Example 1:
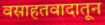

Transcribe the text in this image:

वसाहतवादातून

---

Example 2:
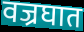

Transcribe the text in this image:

वज्रघात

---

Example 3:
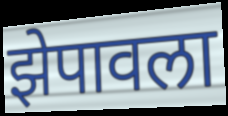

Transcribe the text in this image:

झेपावला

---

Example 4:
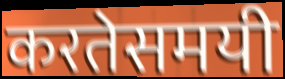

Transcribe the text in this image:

करतेसमयी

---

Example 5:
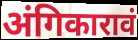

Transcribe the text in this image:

अंगिकारावं